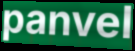
panvel